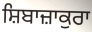
ਸ਼ਿਬਾਜ਼ਾਕੁਰਾ